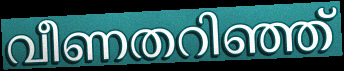
വീണതറിഞ്ഞ്